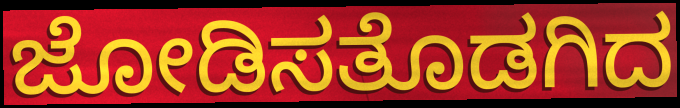
ಜೋಡಿಸತೊಡಗಿದ